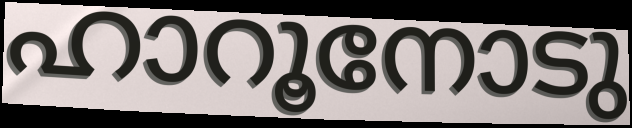
ഹാറൂനോടു